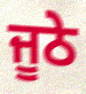
ਜੂਠੇ